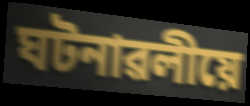
ঘটনাৱলীয়ে